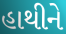
હાથીને